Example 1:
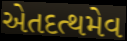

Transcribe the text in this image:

એતદત્થમેવ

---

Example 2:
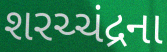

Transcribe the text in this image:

શરચ્ચંદ્રના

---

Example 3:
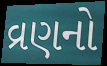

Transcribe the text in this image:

વ્રણનો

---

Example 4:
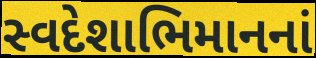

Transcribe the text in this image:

સ્વદેશાભિમાનનાં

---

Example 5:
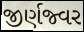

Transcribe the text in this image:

જીર્ણજ્વર